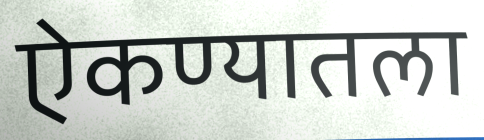
ऐकण्यातला